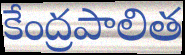
కేంద్రపాలిత